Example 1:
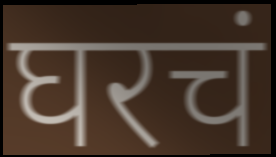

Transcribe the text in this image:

घरचं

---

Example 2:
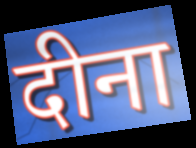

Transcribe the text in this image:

दीना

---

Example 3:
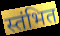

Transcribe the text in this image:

स्तंभित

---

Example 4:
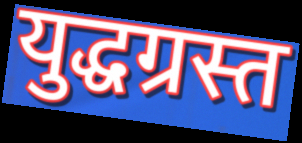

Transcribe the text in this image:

युद्धग्रस्त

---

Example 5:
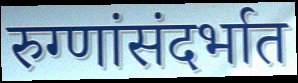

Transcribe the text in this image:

रुग्णांसंदर्भात